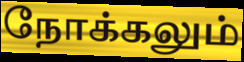
நோக்கலும்